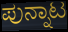
ಪುನ್ನಾಟ